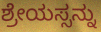
ಶ್ರೇಯಸ್ಸನ್ನು